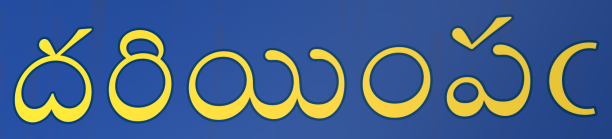
దరియింపఁ